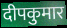
दीपकुमार